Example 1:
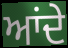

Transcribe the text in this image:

ਆਂਦੇ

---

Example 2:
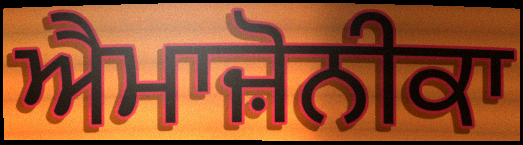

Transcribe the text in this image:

ਐਮਾਜ਼ੋਨੀਕਾ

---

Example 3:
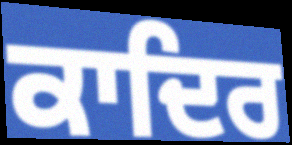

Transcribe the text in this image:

ਕਾਦਿਰ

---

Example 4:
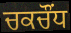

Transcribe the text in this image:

ਚਕਚੌਂਧ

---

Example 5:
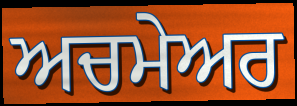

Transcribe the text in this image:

ਅਚਮੇਅਰ